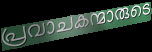
പ്രവാചകന്മാരുടെ